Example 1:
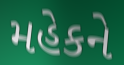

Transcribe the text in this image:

મહેકને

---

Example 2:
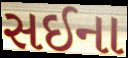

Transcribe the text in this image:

સઈના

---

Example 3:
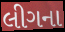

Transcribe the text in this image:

લીગના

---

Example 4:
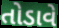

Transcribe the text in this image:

તોડાવે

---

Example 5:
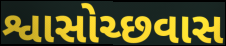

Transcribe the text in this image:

શ્વાસોચ્છવાસ